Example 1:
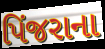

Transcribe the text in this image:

પિંજરાના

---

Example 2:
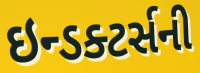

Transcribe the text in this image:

ઇન્ડક્ટર્સની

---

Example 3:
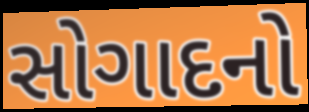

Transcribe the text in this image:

સોગાદનો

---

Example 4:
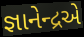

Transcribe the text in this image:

જ્ઞાનેન્દ્રએ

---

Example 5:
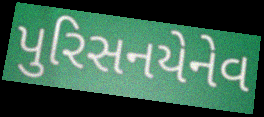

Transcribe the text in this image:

પુરિસનયેનેવ